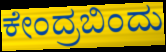
ಕೇಂದ್ರಬಿಂದು